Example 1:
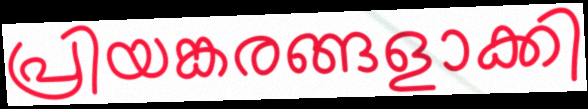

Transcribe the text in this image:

പ്രിയങ്കരങ്ങളാക്കി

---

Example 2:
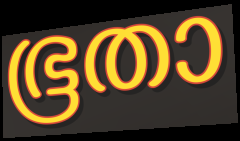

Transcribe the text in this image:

ഭൂതാ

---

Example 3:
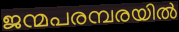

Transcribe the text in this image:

ജന്മപരമ്പരയിൽ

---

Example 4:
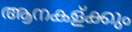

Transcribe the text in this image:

ആനകള്ക്കും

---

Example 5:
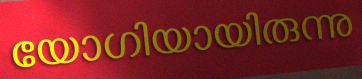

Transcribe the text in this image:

യോഗിയായിരുന്നു